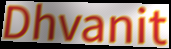
Dhvanit